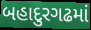
બહાદુરગઢમાં